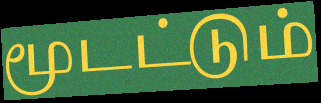
மூடட்டும்